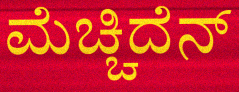
ಮೆಚ್ಚಿದೆನ್